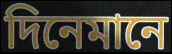
দিনেমানে